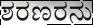
ಶರಣರನು